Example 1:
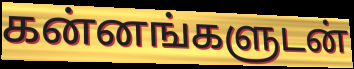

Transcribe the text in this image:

கன்னங்களுடன்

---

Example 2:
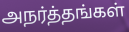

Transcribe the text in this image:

அநர்த்தங்கள்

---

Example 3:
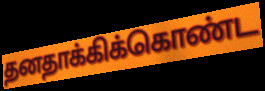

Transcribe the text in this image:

தனதாக்கிக்கொண்ட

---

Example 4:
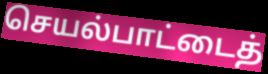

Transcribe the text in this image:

செயல்பாட்டைத்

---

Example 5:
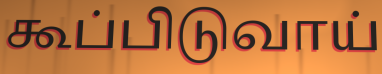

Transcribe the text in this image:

கூப்பிடுவாய்